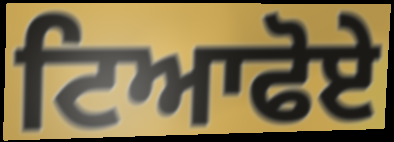
ਟਿਆਫੋਏ